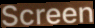
Screen